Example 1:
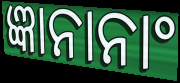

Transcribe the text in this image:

ଜ୍ଞାନାନାଂ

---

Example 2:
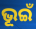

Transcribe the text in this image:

ଭୂଇଁ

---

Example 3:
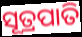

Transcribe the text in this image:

ସୂତ୍ରପାତି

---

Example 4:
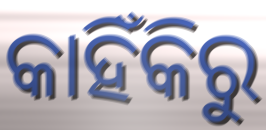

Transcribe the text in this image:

କାହିଁକିରୁ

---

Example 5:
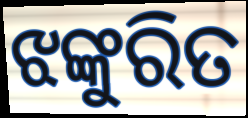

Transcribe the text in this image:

ଝଙ୍କୁରିତ